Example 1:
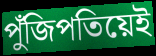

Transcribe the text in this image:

পুঁজিপতিয়েই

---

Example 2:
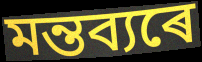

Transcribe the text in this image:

মন্তব্যৰে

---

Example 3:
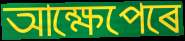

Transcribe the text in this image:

আক্ষেপেৰে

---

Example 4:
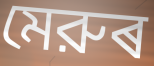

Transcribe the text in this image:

মেৰুৰ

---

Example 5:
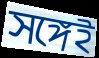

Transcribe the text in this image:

সঙ্গেই